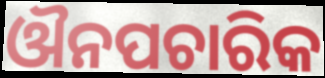
ଔନପଚାରିକ